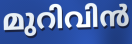
മുറിവിൻ